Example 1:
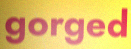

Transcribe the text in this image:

gorged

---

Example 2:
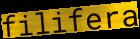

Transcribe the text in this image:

filifera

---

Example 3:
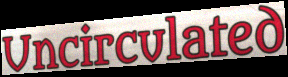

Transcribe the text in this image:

Uncirculated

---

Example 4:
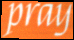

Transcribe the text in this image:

pray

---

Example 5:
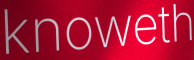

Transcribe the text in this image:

knoweth